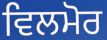
ਵਿਲਮੋਰ